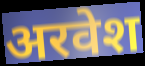
अरवेश